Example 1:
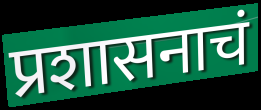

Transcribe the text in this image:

प्रशासनाचं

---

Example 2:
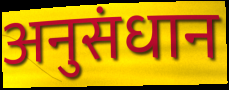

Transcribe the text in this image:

अनुसंधान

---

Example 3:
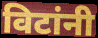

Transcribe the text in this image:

विटांनी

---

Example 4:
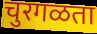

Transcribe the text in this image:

चुरगळता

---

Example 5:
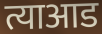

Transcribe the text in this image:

त्याआड